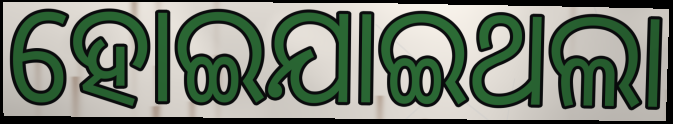
ହୋଇଯାଇଥଲା